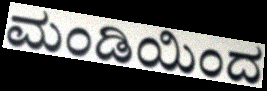
ಮಂಡಿಯಿಂದ